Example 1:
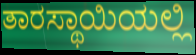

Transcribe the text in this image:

ತಾರಸ್ಥಾಯಿಯಲ್ಲಿ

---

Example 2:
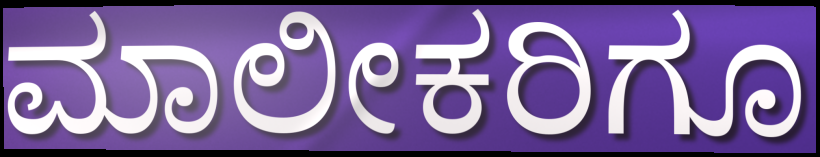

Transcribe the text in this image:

ಮಾಲೀಕರಿಗೂ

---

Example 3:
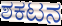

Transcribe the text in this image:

ಶಕಟನ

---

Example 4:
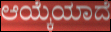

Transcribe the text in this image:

ಆಯ್ಕೆಯಾದೆ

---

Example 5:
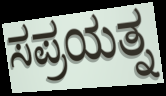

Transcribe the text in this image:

ಸಪ್ರಯತ್ನ